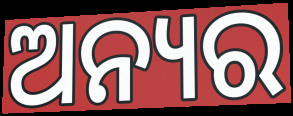
ଅନ୍ୟର